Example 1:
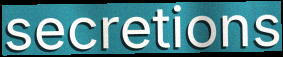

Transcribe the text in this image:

secretions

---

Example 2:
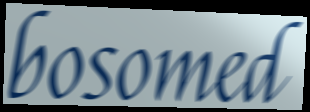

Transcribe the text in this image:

bosomed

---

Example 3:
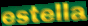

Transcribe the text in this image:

estella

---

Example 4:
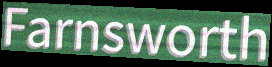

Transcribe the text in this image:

Farnsworth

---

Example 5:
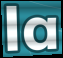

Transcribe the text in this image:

Ia